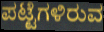
ಪಟ್ಟೆಗಳಿರುವ